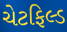
ચેટફિલ્ડ